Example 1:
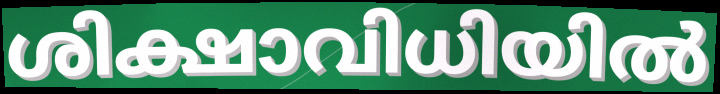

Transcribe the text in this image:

ശിക്ഷാവിധിയിൽ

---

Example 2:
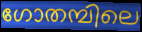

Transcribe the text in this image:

ഗോതമ്പിലെ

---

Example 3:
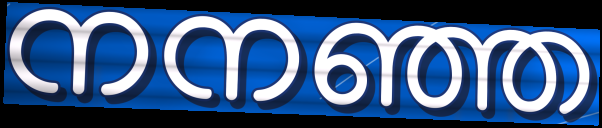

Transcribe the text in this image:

നനഞ്ഞ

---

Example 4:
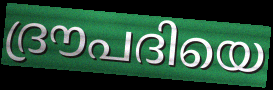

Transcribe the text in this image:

ദ്രൗപദിയെ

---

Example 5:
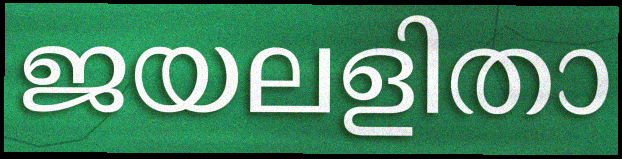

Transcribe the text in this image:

ജയലളിതാ